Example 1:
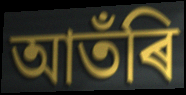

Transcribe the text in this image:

আতঁৰি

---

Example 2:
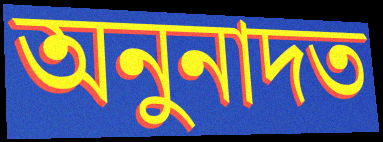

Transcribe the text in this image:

অনুনাদত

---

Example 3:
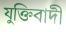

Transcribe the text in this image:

যুক্তিবাদী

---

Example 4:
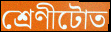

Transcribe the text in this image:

শ্ৰেণীটোত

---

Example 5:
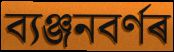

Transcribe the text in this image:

ব্যঞ্জনবৰ্ণৰ